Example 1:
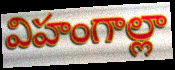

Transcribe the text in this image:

విహంగాల్లా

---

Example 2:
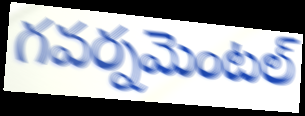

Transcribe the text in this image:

గవర్నమెంటల్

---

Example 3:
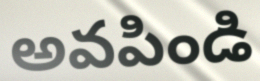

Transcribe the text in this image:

అవపిండి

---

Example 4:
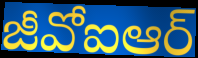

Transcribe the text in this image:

జీవోఐఆర్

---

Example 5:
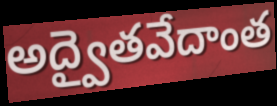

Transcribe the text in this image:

అద్వైతవేదాంత